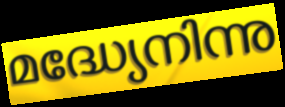
മദ്ധ്യേനിന്നു